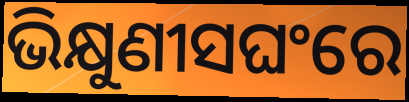
ଭିକ୍ଷୁଣୀସଘଂରେ